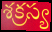
శక్రస్య